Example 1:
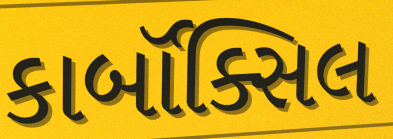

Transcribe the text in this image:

કાર્બૉક્સિલ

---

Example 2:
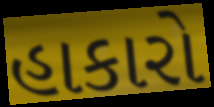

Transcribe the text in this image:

હાકારો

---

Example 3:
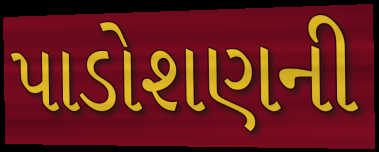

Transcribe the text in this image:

પાડોશણની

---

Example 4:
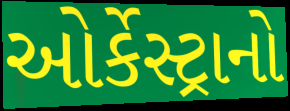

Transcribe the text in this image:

ઓર્કેસ્ટ્રાનો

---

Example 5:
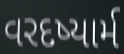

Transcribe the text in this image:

વરદષ્યાર્મ